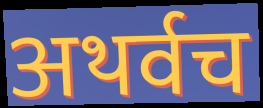
अथर्वच